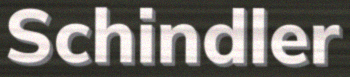
Schindler